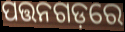
ପତ୍ତନଗଡ଼ରେ